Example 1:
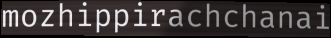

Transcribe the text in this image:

mozhippirachchanai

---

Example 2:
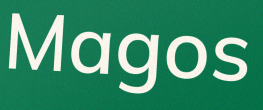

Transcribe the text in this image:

Magos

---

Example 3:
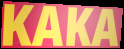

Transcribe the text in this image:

KAKA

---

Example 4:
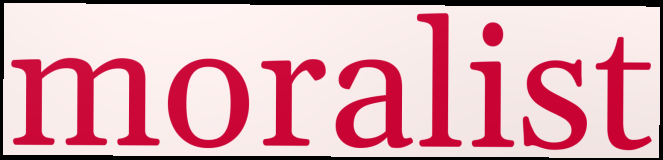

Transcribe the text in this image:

moralist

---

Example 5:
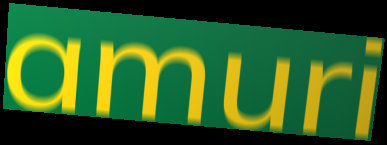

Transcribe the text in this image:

amuri